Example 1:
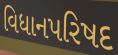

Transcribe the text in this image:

વિધાનપરિષદ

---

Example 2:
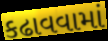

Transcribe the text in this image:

કઢાવવામાં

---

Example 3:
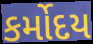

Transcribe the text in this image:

કર્મોદય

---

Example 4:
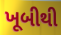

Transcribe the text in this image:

ખૂબીથી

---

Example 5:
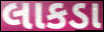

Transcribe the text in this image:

લાકડા